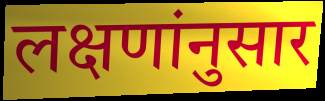
लक्षणांनुसार